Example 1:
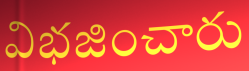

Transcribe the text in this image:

విభజించారు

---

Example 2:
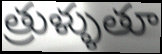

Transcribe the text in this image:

త్రుళ్ళుతూ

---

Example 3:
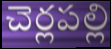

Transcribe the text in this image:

చెర్లపల్లి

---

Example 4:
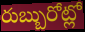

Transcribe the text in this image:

రుబ్బురోట్లో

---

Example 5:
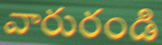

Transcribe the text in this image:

వారురండి